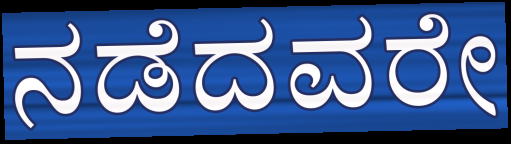
ನಡೆದವರೇ